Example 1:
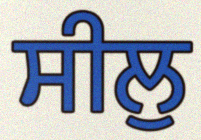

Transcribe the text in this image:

ਸੀਲੁ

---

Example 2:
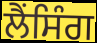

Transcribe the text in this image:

ਲੈਂਸਿੰਗ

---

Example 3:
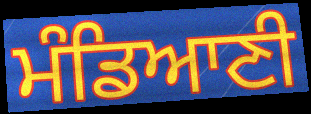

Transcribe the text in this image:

ਮੰਡਿਆਣੀ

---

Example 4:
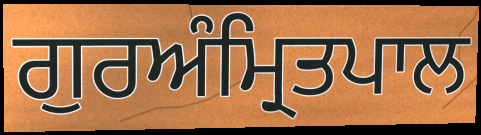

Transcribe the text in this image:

ਗੁਰਅੰਮ੍ਰਿਤਪਾਲ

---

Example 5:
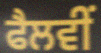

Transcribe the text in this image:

ਫੈਲਵੀਂ